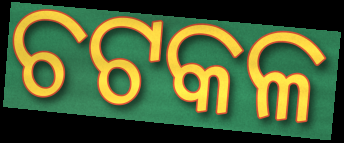
ଚଟକଳ